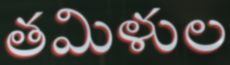
తమిళుల